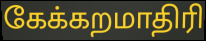
கேக்கறமாதிரி